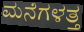
ಮನೆಗಳತ್ತ